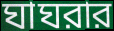
ঘাঘরার